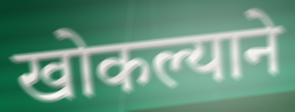
खोकल्याने